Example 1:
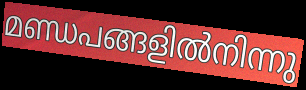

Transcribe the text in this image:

മണ്ഡപങ്ങളിൽനിന്നു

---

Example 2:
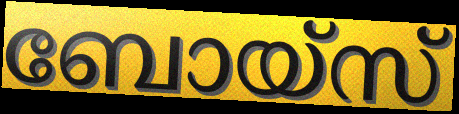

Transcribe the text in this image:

ബോയ്സ്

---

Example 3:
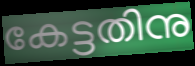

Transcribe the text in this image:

കേട്ടതിനു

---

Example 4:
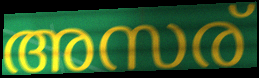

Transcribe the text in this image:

അസര്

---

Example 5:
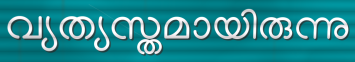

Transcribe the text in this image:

വ്യത്യസ്തമായിരുന്നു